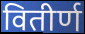
वितीर्ण